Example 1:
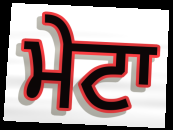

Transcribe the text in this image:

ਮੇਟਾ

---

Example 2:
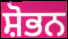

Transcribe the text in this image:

ਸ਼ੋਭਨ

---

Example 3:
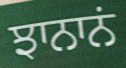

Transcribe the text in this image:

ਝਾਨਾਨਂ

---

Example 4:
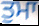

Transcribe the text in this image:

ਤੁਮਾ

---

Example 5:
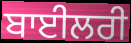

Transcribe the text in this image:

ਬਾਈਲਰੀ